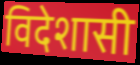
विदेशासी